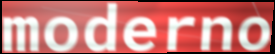
moderno